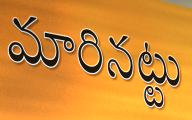
మారినట్టు